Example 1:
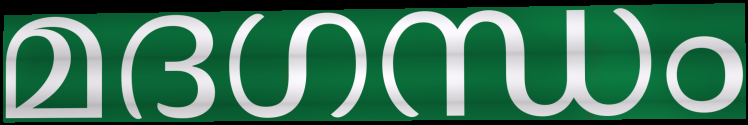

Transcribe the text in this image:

മദഗന്ധം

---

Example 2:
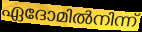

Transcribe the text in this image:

ഏദോമിൽനിന്ന്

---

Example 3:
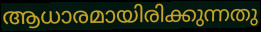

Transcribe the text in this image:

ആധാരമായിരിക്കുന്നതു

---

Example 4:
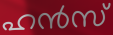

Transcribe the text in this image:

ഹൻസ്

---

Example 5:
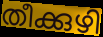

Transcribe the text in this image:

തീക്കുഴി